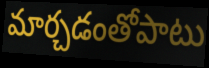
మార్చడంతోపాటు